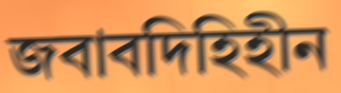
জবাবদিহিহীন